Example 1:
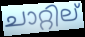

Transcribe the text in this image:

ചാറ്റില്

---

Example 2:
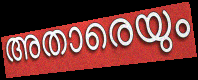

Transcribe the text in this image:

അതാരെയും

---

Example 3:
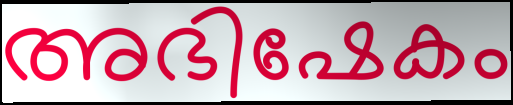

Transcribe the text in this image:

അഭിഷേകം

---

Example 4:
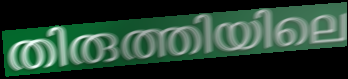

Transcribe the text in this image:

തിരുത്തിയിലെ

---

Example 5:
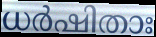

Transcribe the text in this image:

ധർഷിതാഃ